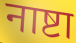
नाष्टा